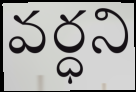
వర్ధని